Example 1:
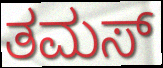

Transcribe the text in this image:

ತಮಸ್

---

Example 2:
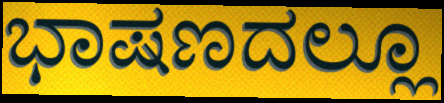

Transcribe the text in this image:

ಭಾಷಣದಲ್ಲೂ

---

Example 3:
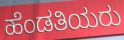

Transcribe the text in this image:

ಹೆಂಡತಿಯರು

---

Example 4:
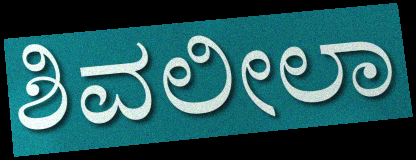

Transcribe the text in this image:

ಶಿವಲೀಲಾ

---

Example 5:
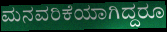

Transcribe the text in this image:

ಮನವರಿಕೆಯಾಗಿದ್ದರೂ